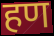
हण